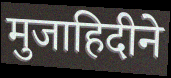
मुजाहिदीने